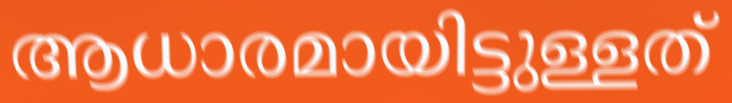
ആധാരമായിട്ടുള്ളത്